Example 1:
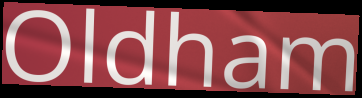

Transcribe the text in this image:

Oldham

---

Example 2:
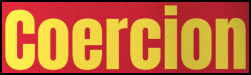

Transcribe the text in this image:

Coercion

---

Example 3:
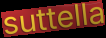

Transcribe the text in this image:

suttella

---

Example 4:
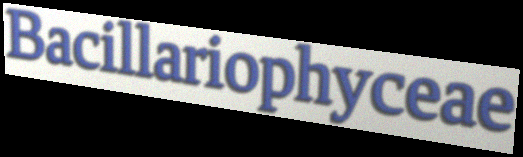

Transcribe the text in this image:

Bacillariophyceae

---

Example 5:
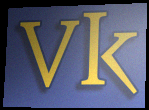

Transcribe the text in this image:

Vk